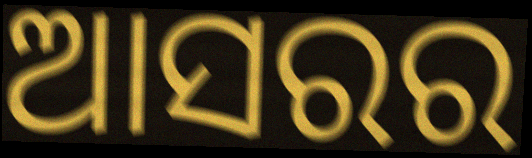
ଆସରର